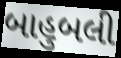
બાહુબલી